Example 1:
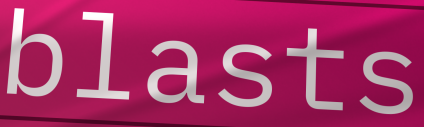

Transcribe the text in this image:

blasts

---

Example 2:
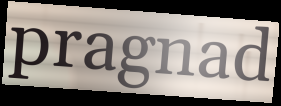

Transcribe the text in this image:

pragnad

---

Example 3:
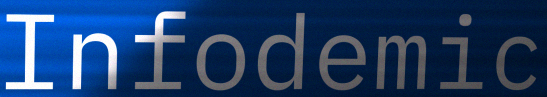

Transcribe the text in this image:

Infodemic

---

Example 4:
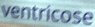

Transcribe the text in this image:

ventricose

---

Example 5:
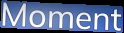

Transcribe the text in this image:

Moment